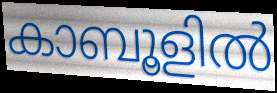
കാബൂളിൽ